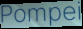
Pompei